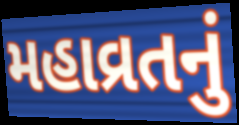
મહાવ્રતનું